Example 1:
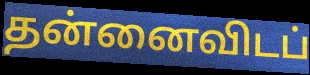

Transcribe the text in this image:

தன்னைவிடப்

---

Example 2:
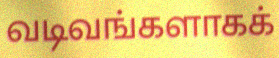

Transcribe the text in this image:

வடிவங்களாகக்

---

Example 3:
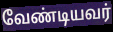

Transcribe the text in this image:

வேண்டியவர்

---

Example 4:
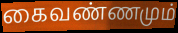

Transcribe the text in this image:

கைவண்ணமும்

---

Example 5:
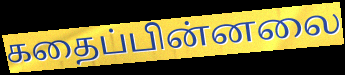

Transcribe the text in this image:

கதைப்பின்னலை